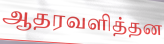
ஆதரவளித்தன